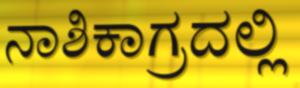
ನಾಶಿಕಾಗ್ರದಲ್ಲಿ